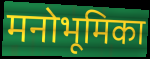
मनोभूमिका